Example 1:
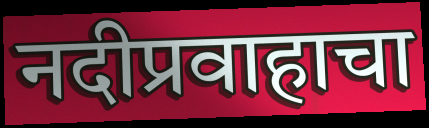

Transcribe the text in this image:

नदीप्रवाहाचा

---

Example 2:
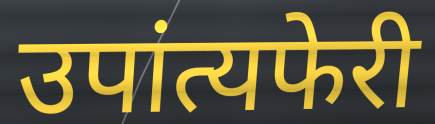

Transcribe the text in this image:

उपांत्यफेरी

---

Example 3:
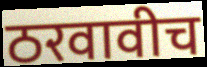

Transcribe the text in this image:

ठरवावीच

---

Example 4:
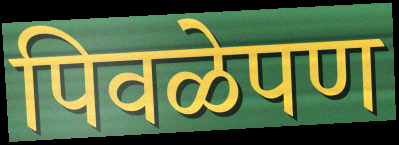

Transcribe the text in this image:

पिवळेपण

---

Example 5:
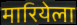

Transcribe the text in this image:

मारियेला